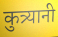
कुत्र्यानी